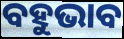
ବହୁଭାବ